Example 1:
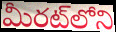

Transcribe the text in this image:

మీరట్‌లోని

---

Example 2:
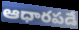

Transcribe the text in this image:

ఆధారపడే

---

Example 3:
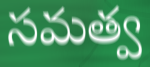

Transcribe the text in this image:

సమత్వ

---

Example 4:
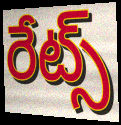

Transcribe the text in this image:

రేట్స్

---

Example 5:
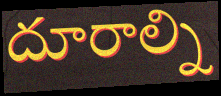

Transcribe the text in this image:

దూరాల్ని